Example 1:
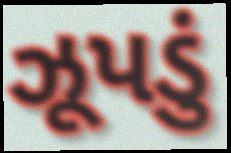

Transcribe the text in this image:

ઝૂપડું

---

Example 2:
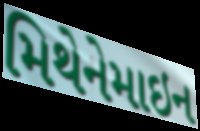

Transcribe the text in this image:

મિથેનેમાઇન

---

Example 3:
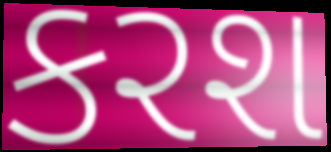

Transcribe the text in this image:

કરશ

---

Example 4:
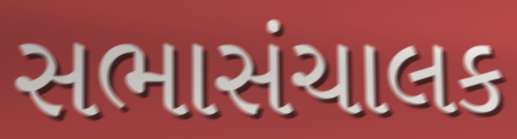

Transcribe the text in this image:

સભાસંચાલક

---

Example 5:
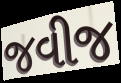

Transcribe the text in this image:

જવીજ